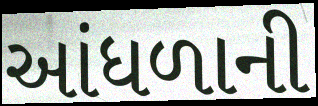
આંધળાની